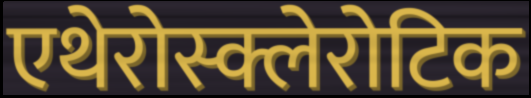
एथेरोस्क्लेरोटिक